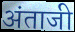
अंताजी